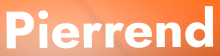
Pierrend